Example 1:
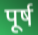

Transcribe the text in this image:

पूर्ष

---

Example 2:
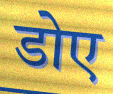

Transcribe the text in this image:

डोए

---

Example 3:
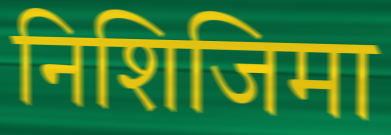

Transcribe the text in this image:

निशिजिमा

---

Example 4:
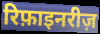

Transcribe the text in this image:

रिफ़ाइनरीज़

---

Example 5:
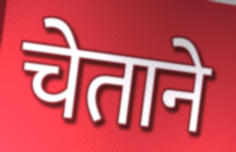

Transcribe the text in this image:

चेताने